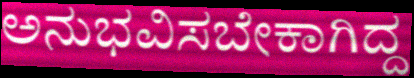
ಅನುಭವಿಸಬೇಕಾಗಿದ್ದ